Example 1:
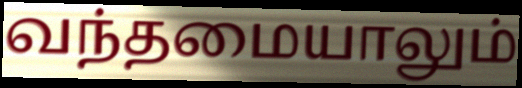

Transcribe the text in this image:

வந்தமையாலும்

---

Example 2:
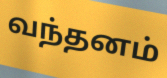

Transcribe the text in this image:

வந்தனம்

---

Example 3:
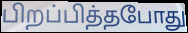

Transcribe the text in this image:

பிறப்பித்தபோது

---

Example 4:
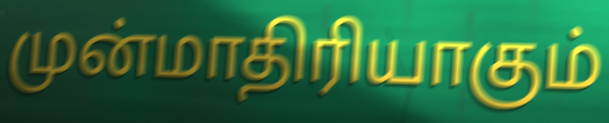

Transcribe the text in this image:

முன்மாதிரியாகும்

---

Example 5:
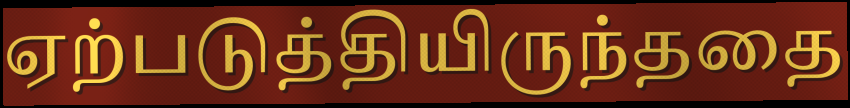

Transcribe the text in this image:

ஏற்படுத்தியிருந்ததை